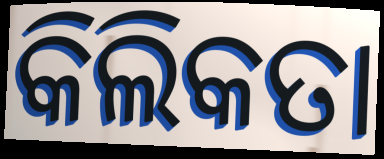
କିଲିକତା